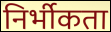
निर्भीकता